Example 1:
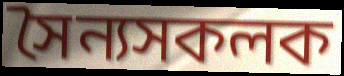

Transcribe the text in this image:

সৈন্যসকলক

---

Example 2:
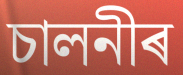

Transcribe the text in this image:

চালনীৰ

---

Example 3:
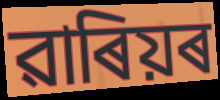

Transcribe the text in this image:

ৱাৰিয়ৰ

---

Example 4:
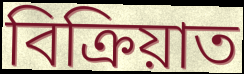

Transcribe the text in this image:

বিক্ৰিয়াত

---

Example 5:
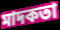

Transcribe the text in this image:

মাদকতা